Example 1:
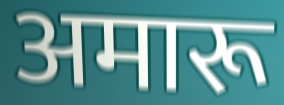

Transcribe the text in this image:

अमारू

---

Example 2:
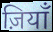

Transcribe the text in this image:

ज़ियाँ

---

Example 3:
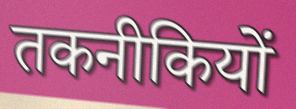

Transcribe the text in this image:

तकनीकियों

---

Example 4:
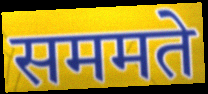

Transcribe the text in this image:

सममते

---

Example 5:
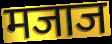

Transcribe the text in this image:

मजाज